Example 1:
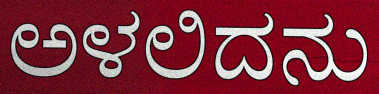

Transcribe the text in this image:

ಅಳಲಿದನು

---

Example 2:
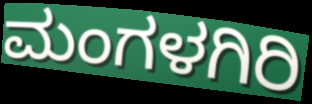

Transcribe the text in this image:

ಮಂಗಳಗಿರಿ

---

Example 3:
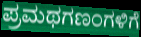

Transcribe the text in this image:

ಪ್ರಮಥಗಣಂಗಳಿಗೆ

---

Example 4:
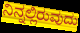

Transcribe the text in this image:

ನಿನ್ನಲ್ಲಿರುವುದು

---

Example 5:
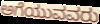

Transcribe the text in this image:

ಅಗೆಯುವವರು